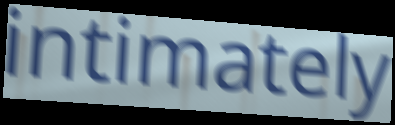
intimately